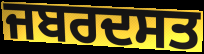
ਜਬਰਦਸਤ